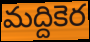
మద్దికెర